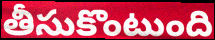
తీసుకొంటుంది